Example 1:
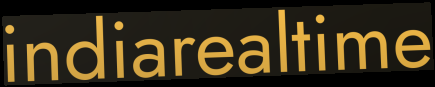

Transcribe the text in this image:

indiarealtime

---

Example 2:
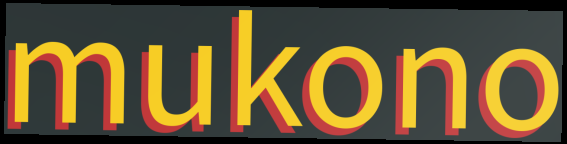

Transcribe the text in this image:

mukono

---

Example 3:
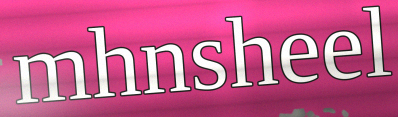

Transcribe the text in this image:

mhnsheel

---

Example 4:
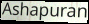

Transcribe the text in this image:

Ashapuran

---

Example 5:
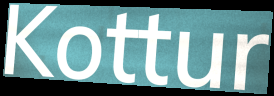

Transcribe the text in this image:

Kottur